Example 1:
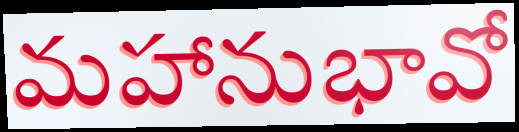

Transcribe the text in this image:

మహానుభావో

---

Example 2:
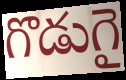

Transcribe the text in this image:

గొడుగై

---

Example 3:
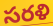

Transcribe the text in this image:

సరళి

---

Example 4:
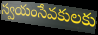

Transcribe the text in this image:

స్వయంసేవకులకు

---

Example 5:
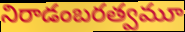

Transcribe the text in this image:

నిరాడంబరత్వమూ